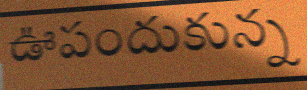
ఊపందుకున్న